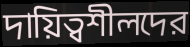
দায়িত্বশীলদের